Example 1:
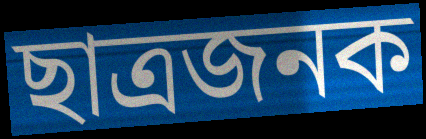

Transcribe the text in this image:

ছাত্ৰজনক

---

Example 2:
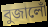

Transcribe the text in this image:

বুজালোঁ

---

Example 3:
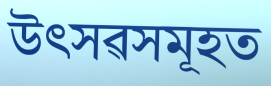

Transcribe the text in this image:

উৎসৱসমূহত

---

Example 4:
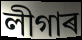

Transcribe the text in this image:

লীগাৰ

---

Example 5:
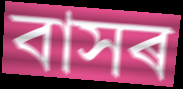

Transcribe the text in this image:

বাসৰ